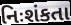
નિઃશંકતા